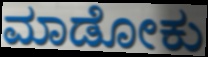
ಮಾಡೋಕು